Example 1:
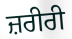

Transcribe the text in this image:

ਜ਼ਰੀਰੀ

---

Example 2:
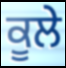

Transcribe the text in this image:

ਕੂਲੇ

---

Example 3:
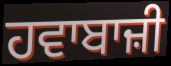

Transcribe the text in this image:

ਹਵਾਬਾਜ਼ੀ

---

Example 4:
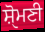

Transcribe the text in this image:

ਸ਼ੑੋਮਣੀ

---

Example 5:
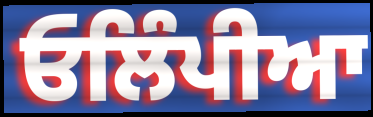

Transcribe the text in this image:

ਓਲਿੰਪੀਆ